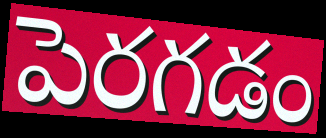
పెరగడం